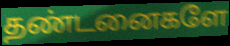
தண்டனைகளே